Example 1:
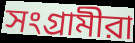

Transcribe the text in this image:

সংগ্রামীরা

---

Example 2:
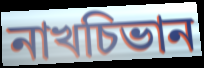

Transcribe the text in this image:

নাখচিভান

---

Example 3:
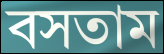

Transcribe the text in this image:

বসতাম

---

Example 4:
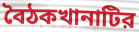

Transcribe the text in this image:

বৈঠকখানাটির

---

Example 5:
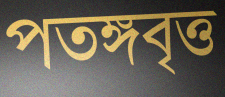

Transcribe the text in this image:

পতঙ্গবৃত্ত